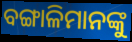
ବଙ୍ଗାଳିମାନଙ୍କୁ